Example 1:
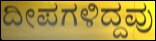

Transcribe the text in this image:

ದೀಪಗಳಿದ್ದವು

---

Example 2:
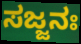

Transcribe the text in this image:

ಸಜ್ಜನಃ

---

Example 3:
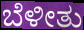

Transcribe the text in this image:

ಬೆಳೀತು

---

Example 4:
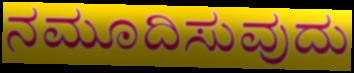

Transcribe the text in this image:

ನಮೂದಿಸುವುದು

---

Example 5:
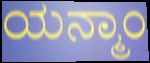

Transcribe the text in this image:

ಯನ್ಮಾಂ